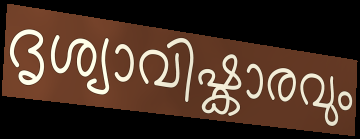
ദൃശ്യാവിഷ്കാരവും